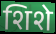
शिशे